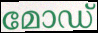
മോഡ്